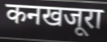
कनखजूरा